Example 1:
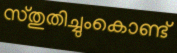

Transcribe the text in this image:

സ്തുതിച്ചുംകൊണ്ട്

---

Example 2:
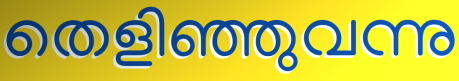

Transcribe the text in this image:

തെളിഞ്ഞുവന്നു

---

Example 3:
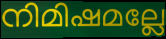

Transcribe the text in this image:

നിമിഷമല്ലേ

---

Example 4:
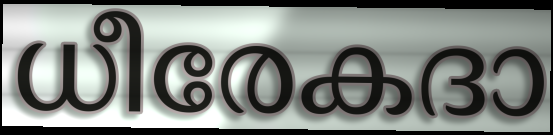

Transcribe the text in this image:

ധീരേകദാ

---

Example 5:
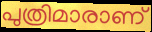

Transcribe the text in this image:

പുത്രിമാരാണ്